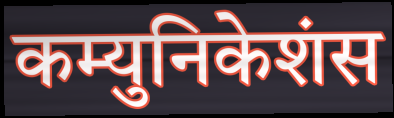
कम्‍युनिकेशंस